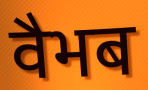
वैभब